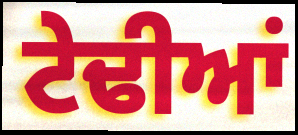
ਟੇਢੀਆਂ